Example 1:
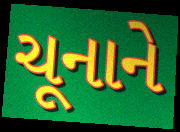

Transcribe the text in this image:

ચૂનાને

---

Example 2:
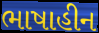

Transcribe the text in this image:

ભાષાહીન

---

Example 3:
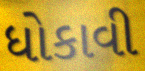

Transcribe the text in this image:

ધોકાવી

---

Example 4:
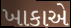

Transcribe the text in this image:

ખાકાએ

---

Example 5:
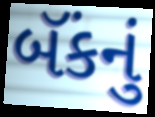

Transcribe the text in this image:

બૅંકનું